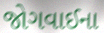
જોગવાઈના